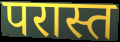
परास्त